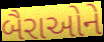
બૈરાઓને